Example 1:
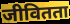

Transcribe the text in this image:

जीवितता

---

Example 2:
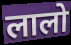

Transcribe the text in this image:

लालो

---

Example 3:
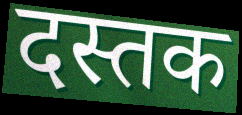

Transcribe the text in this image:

दस्तक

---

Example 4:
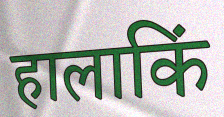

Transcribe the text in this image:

हालाकिं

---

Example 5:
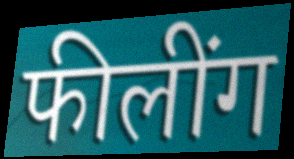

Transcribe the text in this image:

फीलींग